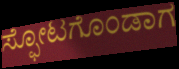
ಸ್ಫೋಟಗೊಂಡಾಗ